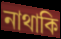
নাথাকি